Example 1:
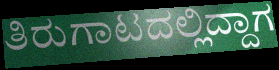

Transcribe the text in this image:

ತಿರುಗಾಟದಲ್ಲಿದ್ದಾಗ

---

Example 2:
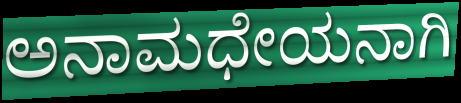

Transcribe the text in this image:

ಅನಾಮಧೇಯನಾಗಿ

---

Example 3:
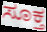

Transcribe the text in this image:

ಸೂಕ್ತ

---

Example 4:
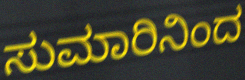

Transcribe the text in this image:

ಸುಮಾರಿನಿಂದ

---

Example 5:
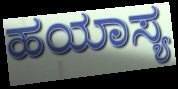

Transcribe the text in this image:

ಹಯಾಸ್ಯ